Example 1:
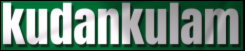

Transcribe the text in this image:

kudankulam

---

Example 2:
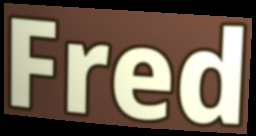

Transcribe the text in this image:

Fred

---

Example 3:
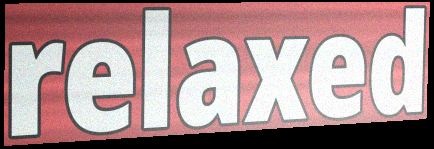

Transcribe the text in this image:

relaxed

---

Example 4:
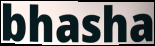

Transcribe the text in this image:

bhasha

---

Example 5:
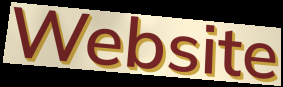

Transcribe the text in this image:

Website